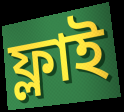
ফ্লাই